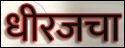
धीरजचा